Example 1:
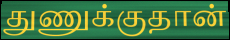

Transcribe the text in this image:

துணுக்குதான்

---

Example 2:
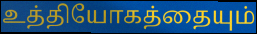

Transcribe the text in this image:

உத்தியோகத்தையும்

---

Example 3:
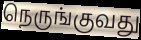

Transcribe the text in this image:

நெருங்குவது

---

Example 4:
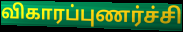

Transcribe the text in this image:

விகாரப்புணர்ச்சி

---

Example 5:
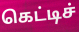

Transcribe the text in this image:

கெட்டிச்